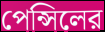
পেন্সিলের